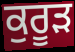
ਕੁਰੂੜ